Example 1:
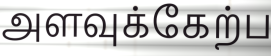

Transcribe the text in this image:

அளவுக்கேற்ப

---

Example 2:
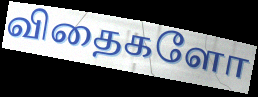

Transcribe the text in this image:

விதைகளோ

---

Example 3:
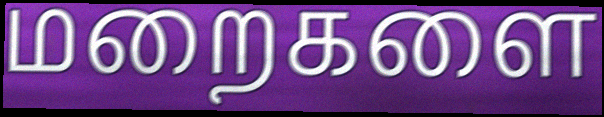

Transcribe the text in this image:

மறைகளை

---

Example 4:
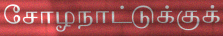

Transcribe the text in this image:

சோழநாட்டுக்குக்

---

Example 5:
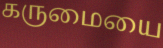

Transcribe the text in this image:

கருமையை